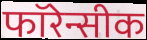
फॉरेन्सीक